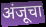
अंजूचा